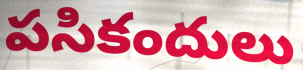
పసికందులు